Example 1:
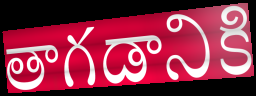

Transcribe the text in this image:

తాగడానికి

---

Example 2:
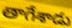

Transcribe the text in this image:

తాగేశాడు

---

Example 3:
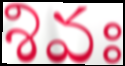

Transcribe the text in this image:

శివః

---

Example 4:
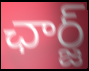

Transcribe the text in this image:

ఛార్జ్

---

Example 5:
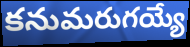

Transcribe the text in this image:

కనుమరుగయ్యే